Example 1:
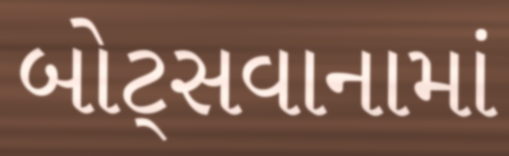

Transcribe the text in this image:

બોટ્સવાનામાં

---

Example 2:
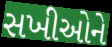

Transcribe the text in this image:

સખીઓને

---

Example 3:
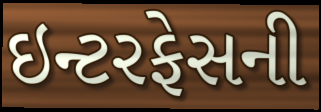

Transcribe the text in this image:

ઇન્ટરફેસની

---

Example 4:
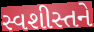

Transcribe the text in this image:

સ્વશીસ્તને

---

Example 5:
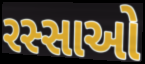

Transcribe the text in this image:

રસ્સાઓ